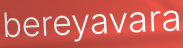
bereyavara